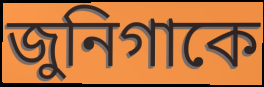
জুনিগাকে